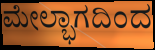
ಮೇಲ್ಭಾಗದಿಂದ